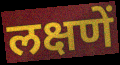
लक्षणें